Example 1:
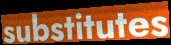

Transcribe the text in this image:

substitutes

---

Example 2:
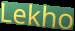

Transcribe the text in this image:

Lekho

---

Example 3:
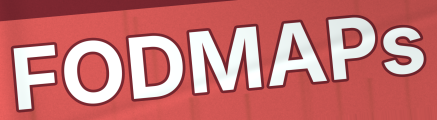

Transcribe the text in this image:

FODMAPs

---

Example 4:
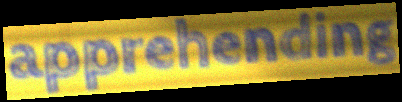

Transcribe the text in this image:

apprehending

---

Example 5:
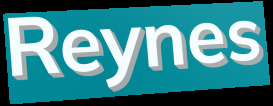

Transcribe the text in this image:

Reynes